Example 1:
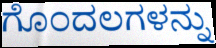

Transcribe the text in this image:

ಗೊಂದಲಗಳನ್ನು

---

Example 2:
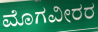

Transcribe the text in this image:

ಮೊಗವೀರರ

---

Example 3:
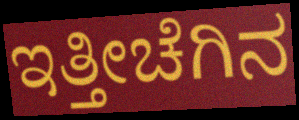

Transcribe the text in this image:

ಇತ್ತೀಚೆಗಿನ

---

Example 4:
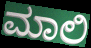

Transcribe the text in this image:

ಮಾಲಿ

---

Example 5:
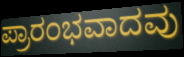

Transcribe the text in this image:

ಪ್ರಾರಂಭವಾದವು